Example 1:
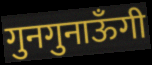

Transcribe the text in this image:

गुनगुनाऊँगी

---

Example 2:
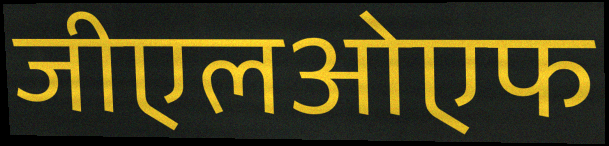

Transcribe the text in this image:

जीएलओएफ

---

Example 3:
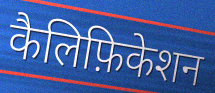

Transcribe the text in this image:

कैलिफ़िकेशन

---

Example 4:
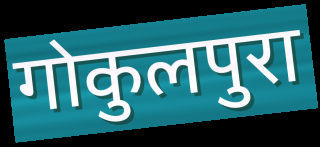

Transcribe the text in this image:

गोकुलपुरा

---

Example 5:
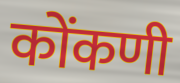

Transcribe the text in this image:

कोंकणी